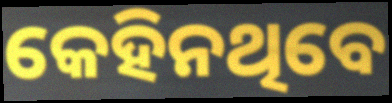
କେହିନଥିବେ